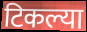
टिकल्या